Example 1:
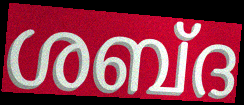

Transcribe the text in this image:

ശബ്‌ദ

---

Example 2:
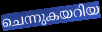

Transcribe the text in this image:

ചെന്നുകയറിയ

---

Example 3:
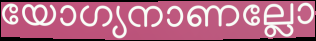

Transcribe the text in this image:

യോഗ്യനാണല്ലോ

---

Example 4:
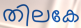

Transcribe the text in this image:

തിലകേ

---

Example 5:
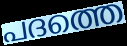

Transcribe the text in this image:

പദത്തെ